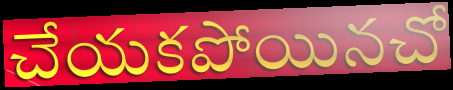
చేయకపోయినచో